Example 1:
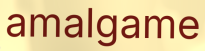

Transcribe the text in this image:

amalgame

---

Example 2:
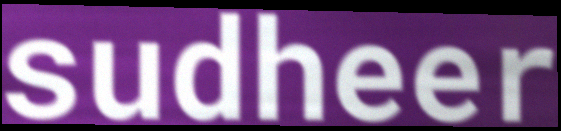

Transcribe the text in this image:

sudheer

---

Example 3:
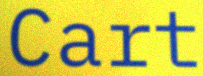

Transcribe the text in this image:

Cart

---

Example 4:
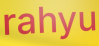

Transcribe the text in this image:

rahyu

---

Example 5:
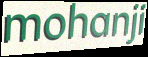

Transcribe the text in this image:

mohanji